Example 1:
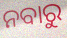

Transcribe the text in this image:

ନବାରୁ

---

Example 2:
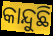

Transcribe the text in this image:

କାନ୍ଦୁଛି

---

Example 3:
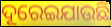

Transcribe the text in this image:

ଦୂରେଇଯାଉଛି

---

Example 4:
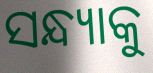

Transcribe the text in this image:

ସନ୍ଧ୍ୟାକୁ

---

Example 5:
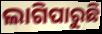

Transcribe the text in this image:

ଲାଗିପାରୁଛି